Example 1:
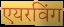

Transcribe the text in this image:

एयरविंग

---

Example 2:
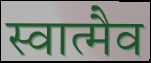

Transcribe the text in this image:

स्वात्मैव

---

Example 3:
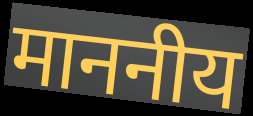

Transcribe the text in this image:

माननीय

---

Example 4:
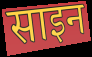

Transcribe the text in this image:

साइन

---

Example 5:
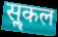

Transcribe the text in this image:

सॢकल